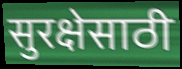
सुरक्षेसाठी